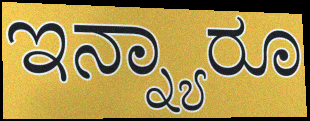
ಇನ್ನ್ಯಾರೂ